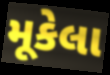
મૂકેલા